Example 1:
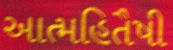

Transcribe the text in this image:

આત્મહિતૈષી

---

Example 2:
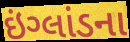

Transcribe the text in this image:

ઇંગ્લાંડના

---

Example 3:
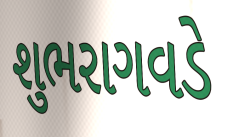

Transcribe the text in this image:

શુભરાગવડે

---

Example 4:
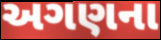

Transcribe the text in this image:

અગણના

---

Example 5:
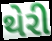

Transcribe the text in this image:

થેરી